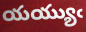
యయ్యుఁ